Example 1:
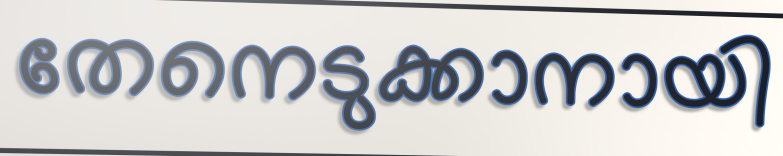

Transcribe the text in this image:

തേനെടുക്കാനായി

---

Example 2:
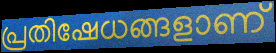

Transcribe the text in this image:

പ്രതിഷേധങ്ങളാണ്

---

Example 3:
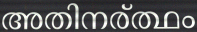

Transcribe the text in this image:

അതിനര്ത്ഥം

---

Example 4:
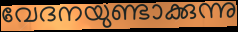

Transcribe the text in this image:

വേദനയുണ്ടാക്കുന്നു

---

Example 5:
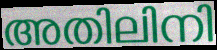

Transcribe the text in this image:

അതിലിനി